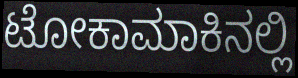
ಟೋಕಾಮಾಕಿನಲ್ಲಿ